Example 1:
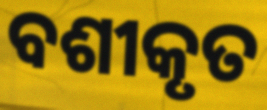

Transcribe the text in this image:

ବଶୀକୃତ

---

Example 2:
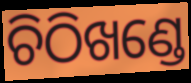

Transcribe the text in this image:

ଚିଠିଖଣ୍ଡେ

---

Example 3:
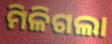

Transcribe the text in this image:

ମିଳିଗଲା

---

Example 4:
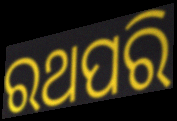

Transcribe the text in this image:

ରଥପରି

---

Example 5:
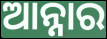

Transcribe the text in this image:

ଆନ୍ନାର